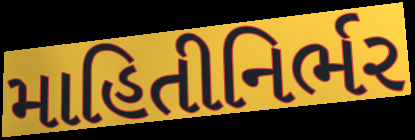
માહિતીનિર્ભર